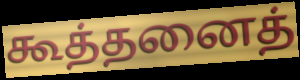
கூத்தனைத்